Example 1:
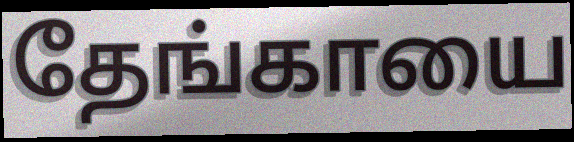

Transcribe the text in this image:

தேங்காயை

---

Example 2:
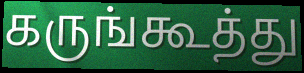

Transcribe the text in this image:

கருங்கூத்து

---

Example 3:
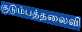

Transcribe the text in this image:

குடும்பத்தலைவி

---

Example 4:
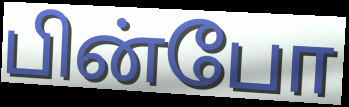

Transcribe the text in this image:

பின்போ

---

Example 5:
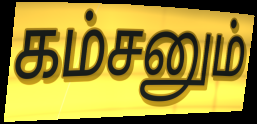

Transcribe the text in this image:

கம்சனும்